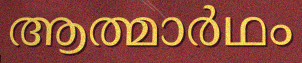
ആത്മാർഥം